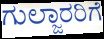
ಗುಲ್ಜಾರರಿಗೆ